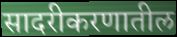
सादरीकरणातील